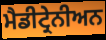
ਮੈਡੀਟ੍ਰੇਨੀਅਨ